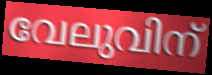
വേലുവിന്